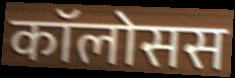
कॉलोसस